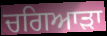
ਚਗਿਆੜਾ